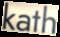
kath